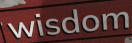
wisdom